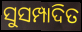
ସୁସମ୍ପାଦିତ